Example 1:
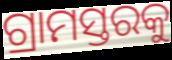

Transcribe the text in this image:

ଗ୍ରାମସ୍ତରକୁ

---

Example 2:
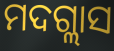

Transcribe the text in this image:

ମଦଗ୍ଲାସ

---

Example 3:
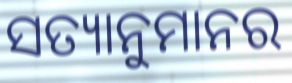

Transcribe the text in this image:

ସତ୍ୟାନୁମାନର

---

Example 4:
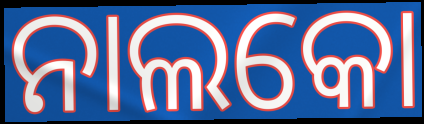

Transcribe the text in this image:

ନାଲକୋ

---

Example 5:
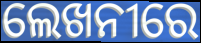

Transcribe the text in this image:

ଲେଖନୀରେ